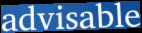
advisable